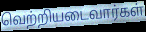
வெற்றியடைவார்கள்